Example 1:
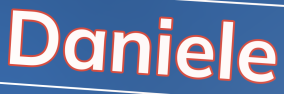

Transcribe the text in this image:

Daniele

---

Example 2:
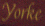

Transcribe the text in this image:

Yorke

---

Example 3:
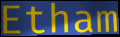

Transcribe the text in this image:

Etham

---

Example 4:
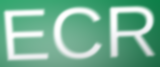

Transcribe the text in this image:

ECR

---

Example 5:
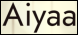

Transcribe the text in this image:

Aiyaa